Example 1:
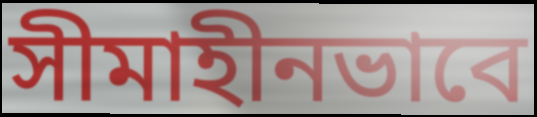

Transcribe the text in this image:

সীমাহীনভাবে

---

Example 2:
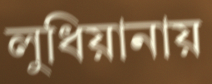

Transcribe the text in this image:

লুধিয়ানায়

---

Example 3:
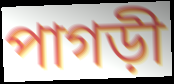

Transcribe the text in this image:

পাগড়ী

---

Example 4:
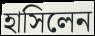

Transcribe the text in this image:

হাসিলেন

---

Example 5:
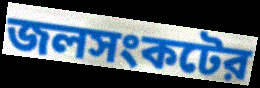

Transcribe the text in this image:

জলসংকটের